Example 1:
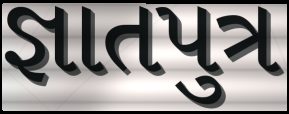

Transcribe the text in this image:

જ્ઞાતપુત્ર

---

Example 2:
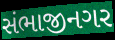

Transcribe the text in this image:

સંભાજીનગર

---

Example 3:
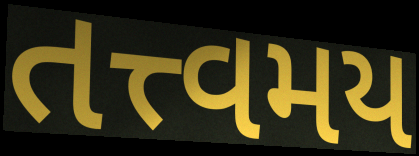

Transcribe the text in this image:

તત્ત્વમય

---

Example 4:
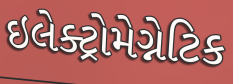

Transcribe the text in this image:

ઇલેક્ટ્રોમેગ્નેટિક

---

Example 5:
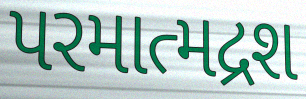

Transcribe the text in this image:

પરમાત્મદ્રશ